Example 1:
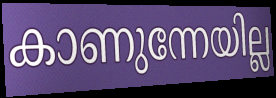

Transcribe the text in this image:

കാണുന്നേയില്ല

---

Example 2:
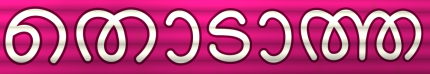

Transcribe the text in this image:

തൊടാത്ത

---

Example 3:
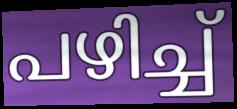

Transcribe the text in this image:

പഴിച്ച്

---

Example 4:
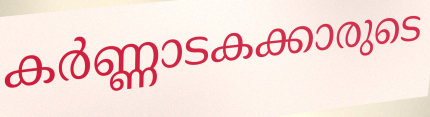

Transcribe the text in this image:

കർണ്ണാടകക്കാരുടെ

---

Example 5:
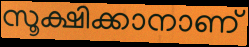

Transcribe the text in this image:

സൂക്ഷിക്കാനാണ്